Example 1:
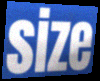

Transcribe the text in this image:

size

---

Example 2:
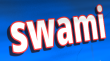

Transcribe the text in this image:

swami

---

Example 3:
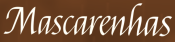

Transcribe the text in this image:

Mascarenhas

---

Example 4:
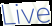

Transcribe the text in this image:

Live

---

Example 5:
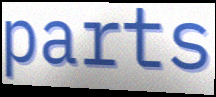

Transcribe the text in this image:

parts